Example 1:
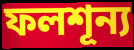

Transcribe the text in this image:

ফলশূন্য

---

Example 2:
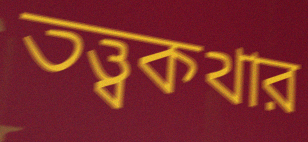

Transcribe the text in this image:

তত্ত্বকথার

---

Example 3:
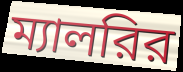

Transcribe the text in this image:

ম্যালরির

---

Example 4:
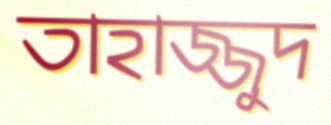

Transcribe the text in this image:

তাহাজ্জুদ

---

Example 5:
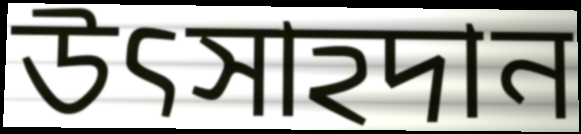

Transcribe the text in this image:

উৎসাহদান